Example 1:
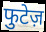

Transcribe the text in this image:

फुटेज़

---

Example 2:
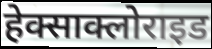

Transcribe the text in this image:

हेक्साक्लोराइड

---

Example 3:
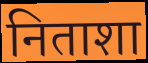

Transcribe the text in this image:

निताशा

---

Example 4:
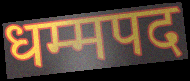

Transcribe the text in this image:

धम्मपद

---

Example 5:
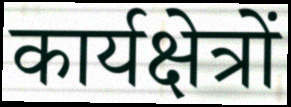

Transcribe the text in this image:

कार्यक्षेत्रों